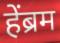
हेंब्रम